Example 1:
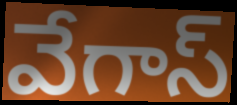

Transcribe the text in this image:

వేగాస్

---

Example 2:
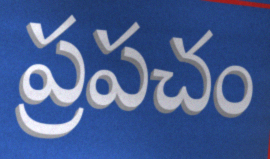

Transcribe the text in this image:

ప్రపచం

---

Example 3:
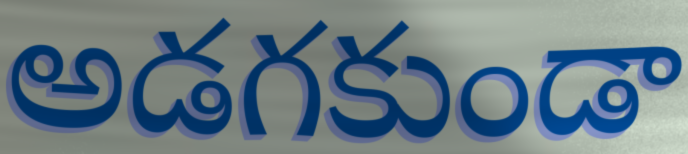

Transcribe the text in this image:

అడగకుండా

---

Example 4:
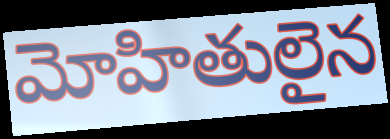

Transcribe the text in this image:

మోహితులైన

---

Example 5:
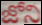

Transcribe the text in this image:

జోని